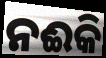
ନଈକି